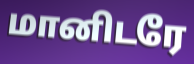
மானிடரே